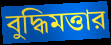
বুদ্ধিমত্তার